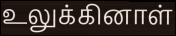
உலுக்கினாள்